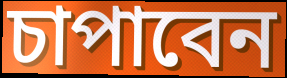
চাপাবেন